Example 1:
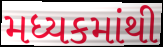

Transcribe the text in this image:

મધ્યકમાંથી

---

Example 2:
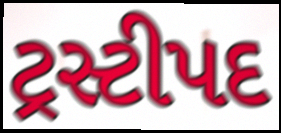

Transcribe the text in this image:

ટ્રસ્ટીપદ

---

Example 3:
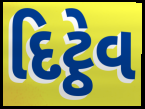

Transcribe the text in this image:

દિટ્ઠેવ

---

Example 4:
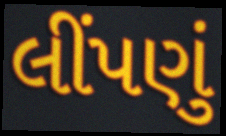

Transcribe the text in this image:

લીંપણું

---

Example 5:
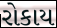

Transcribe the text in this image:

રોકાય